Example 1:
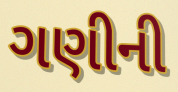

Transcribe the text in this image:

ગણીની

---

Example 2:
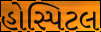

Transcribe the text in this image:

હોસ્પિટલ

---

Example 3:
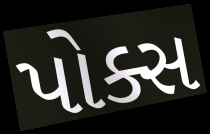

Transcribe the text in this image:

પોક્સ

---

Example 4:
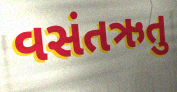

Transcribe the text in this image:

વસંતઋતુ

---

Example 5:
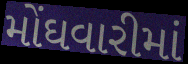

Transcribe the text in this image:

મોંઘવારીમાં